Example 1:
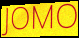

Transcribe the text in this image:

JOMO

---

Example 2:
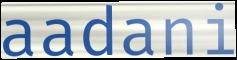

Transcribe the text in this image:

aadani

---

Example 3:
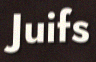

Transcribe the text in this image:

Juifs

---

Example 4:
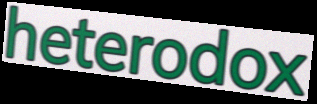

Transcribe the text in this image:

heterodox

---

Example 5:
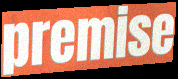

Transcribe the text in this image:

premise